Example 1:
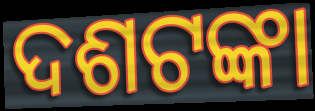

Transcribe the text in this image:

ଦଶଟଙ୍କା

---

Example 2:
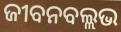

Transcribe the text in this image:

ଜୀବନବଲ୍ଲଭ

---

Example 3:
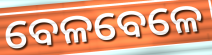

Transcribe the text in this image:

ବେଳବେଳେ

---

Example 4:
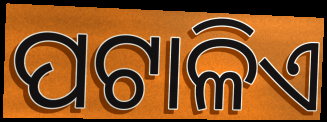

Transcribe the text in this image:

ପଟାଳିଏ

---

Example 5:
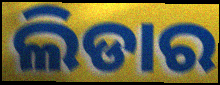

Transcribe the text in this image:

ଲିଡାର